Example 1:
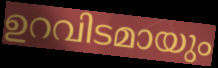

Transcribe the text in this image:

ഉറവിടമായും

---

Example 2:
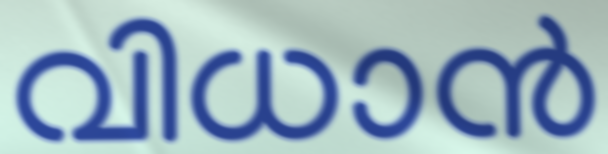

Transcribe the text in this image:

വിധാൻ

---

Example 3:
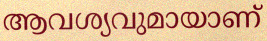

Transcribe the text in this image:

ആവശ്യവുമായാണ്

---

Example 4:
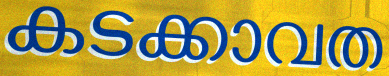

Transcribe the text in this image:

കടക്കാവത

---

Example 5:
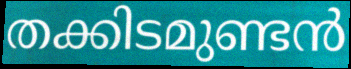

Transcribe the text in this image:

തക്കിടമുണ്ടൻ